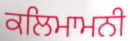
ਕਲਿਮਾਮਨੀ